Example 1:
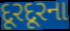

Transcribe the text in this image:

દૂરદૂરના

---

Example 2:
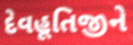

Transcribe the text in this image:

દેવહૂતિજીને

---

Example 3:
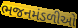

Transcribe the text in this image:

ભજનમંડળીઓ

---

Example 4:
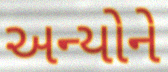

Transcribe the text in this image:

અન્યોને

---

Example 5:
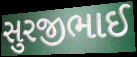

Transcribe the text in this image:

સુરજીભાઈ